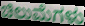
ಚಿಲುಮೆಗಳು